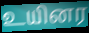
உயினர